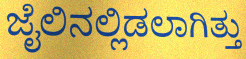
ಜೈಲಿನಲ್ಲಿಡಲಾಗಿತ್ತು